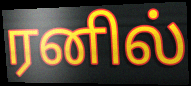
ரனில்